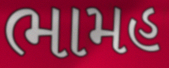
ભામહ